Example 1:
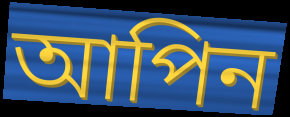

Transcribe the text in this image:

আপিন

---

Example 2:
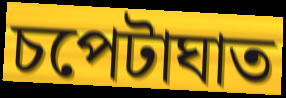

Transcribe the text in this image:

চপেটাঘাত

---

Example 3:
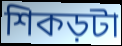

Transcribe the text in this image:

শিকড়টা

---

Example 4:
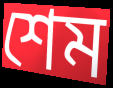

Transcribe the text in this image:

শেম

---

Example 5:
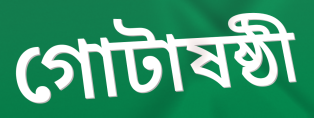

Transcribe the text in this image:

গোটাষষ্ঠী